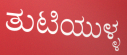
ತುಟಿಯುಳ್ಳ